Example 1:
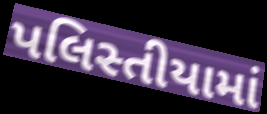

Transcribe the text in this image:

પલિસ્તીયામાં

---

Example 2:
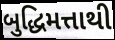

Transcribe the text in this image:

બુદ્ધિમત્તાથી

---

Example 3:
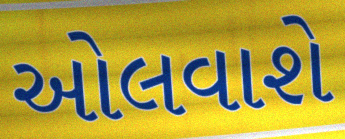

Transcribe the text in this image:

ઓલવાશે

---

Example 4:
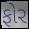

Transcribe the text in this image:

ફોર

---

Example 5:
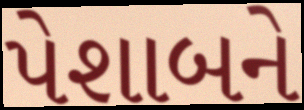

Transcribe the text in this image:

પેશાબને